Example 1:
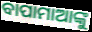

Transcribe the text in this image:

ବାପାମାଆଙ୍କୁ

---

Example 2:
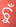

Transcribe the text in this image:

ଚୁଁ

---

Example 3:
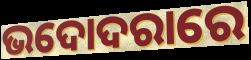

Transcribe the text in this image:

ଭଦୋଦରାରେ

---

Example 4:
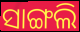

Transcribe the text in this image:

ସାଙ୍ଗଲି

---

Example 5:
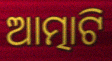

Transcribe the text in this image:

ଆତ୍ମାଟି